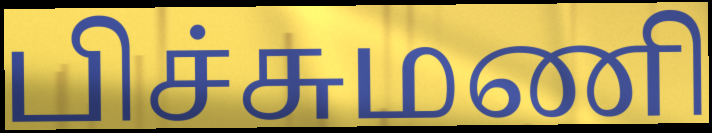
பிச்சுமணி